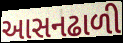
આસનઢાળી